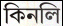
কিনলি